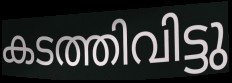
കടത്തിവിട്ടു